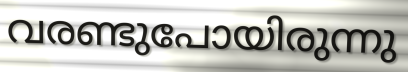
വരണ്ടുപോയിരുന്നു